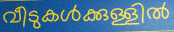
വീടുകൾക്കുള്ളിൽ